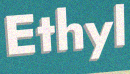
Ethyl